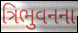
ત્રિભુવનના